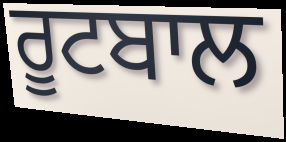
ਰੂਟਬਾਲ